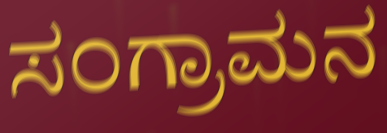
ಸಂಗ್ರಾಮನ